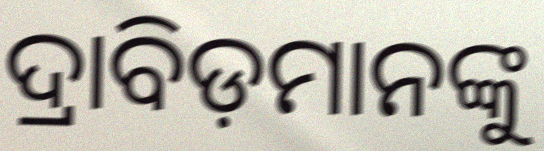
ଦ୍ରାବିଡ଼ମାନଙ୍କୁ